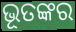
ଭୂତଙ୍କର